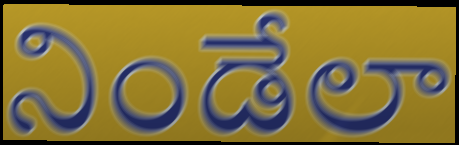
నిండేలా